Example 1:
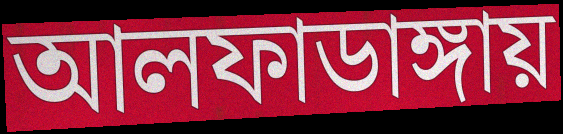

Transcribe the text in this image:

আলফাডাঙ্গায়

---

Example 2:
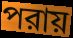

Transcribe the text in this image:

পরায়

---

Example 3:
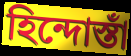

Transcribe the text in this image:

হিন্দোস্তাঁ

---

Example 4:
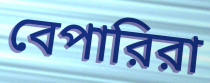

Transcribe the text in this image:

বেপারিরা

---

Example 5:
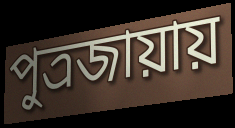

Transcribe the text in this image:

পুত্রজায়ায়